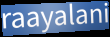
raayalani